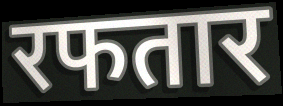
रफतार